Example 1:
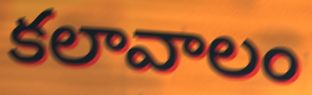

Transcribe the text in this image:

కలావాలం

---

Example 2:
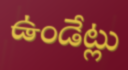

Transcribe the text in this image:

ఉండేట్లు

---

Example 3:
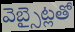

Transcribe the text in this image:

వెబ్సైట్లతో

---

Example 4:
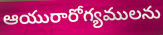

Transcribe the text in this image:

ఆయురారోగ్యములను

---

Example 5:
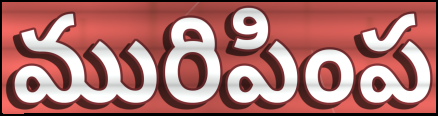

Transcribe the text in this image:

మురిపింప